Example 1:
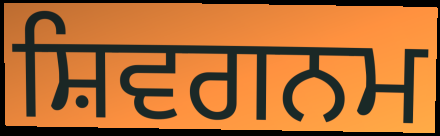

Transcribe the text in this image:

ਸ਼ਿਵਗਨਮ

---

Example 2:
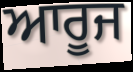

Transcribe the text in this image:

ਆਰੂਜ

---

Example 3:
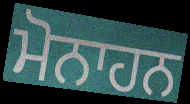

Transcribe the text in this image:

ਮੋਨਾਹਨ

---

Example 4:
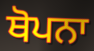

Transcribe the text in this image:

ਥੋਪਨਾ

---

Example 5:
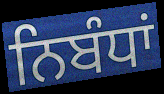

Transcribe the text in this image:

ਨਿਬੰਧਾਂ